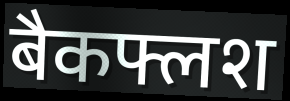
बैकफ्लश